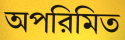
অপরিমিত